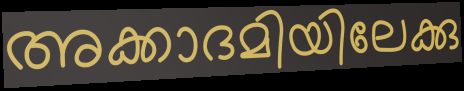
അക്കാദമിയിലേക്കു